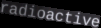
radioactive